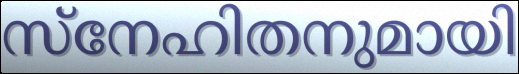
സ്നേഹിതനുമായി